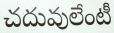
చదువులేంటీ